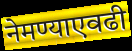
नेमण्याएवढी